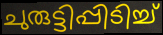
ചുരുട്ടിപ്പിടിച്ച്